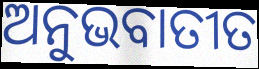
ଅନୁଭବାତୀତ